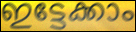
ഇട്ടേക്കാം